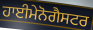
ਹਾਈਮੇਨੋਗੈਸਟਰ